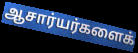
ஆசார்யர்களைக்